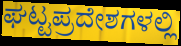
ಘಟ್ಟಪ್ರದೇಶಗಳಲ್ಲಿ